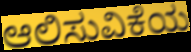
ಆಲಿಸುವಿಕೆಯ